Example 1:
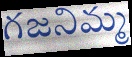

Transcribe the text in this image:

గజనిమ్మ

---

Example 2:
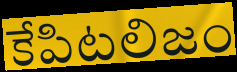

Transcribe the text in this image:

కేపిటలిజం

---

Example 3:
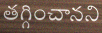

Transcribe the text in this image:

తగ్గించానని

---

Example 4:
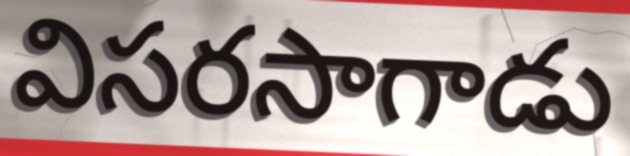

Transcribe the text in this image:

విసరసాగాడు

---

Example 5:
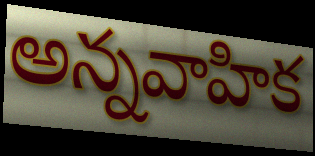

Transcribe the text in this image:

అన్నవాహిక